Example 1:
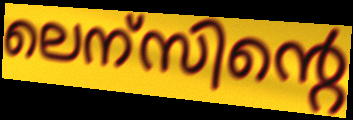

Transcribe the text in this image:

ലെന്സിന്റെ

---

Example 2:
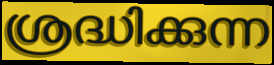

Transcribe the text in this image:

ശ്രദ്ധിക്കുന്ന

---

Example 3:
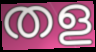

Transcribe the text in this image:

തള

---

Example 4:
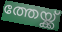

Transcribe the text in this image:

ത്തേയ്ക്ക്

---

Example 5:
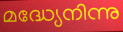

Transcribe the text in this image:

മദ്ധ്യേനിന്നു